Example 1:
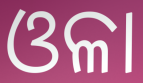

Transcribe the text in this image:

ଓଳା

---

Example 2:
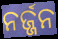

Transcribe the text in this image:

ନର୍ଜ୍ଜନ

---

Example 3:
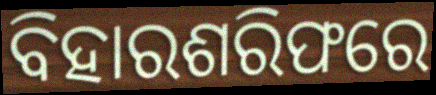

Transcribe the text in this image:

ବିହାରଶରିଫରେ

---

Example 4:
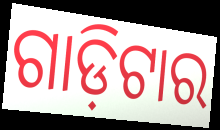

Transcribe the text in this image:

ଗାଡ଼ିଟାର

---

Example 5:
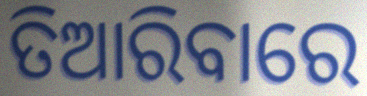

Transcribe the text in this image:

ତିଆରିବାରେ